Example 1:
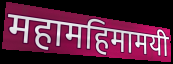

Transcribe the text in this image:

महामहिमामयी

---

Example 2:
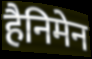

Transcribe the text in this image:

हैनिमेन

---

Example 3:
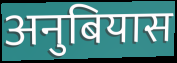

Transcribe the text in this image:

अनुबियास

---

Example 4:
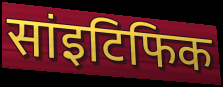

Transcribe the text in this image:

सांइटिफिक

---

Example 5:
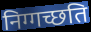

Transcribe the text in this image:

निग्गच्छति